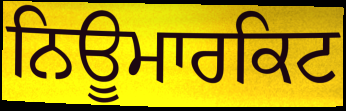
ਨਿਊਮਾਰਕਿਟ